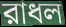
রাধল